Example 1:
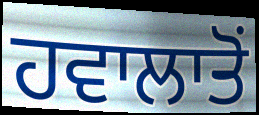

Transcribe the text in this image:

ਹਵਾਲਾਤੋਂ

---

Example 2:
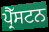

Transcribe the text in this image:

ਪ੍ਰੈੱਸਟਨ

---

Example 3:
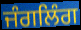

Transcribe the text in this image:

ਜੰਗਲਿੰਗ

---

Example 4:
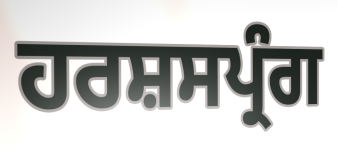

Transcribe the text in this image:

ਹਰਸ਼ਸਪ੍ਰੰਗ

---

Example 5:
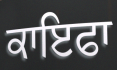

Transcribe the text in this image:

ਕਾਇਫਾ